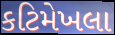
કટિમેખલા